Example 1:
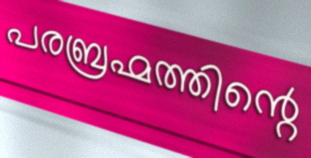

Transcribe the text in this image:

പരബ്രഹ്മത്തിന്റെ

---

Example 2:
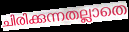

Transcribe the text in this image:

ചിരിക്കുന്നതല്ലാതെ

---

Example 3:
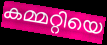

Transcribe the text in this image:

കമ്മറ്റിയെ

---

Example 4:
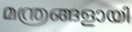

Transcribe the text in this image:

മന്ത്രങ്ങളായി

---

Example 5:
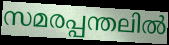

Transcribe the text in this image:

സമരപ്പന്തലിൽ